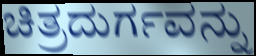
ಚಿತ್ರದುರ್ಗವನ್ನು